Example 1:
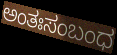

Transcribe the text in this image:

ಅಂತಃಸಂಬಂಧ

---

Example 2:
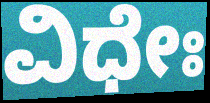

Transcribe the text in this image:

ವಿಧೇಃ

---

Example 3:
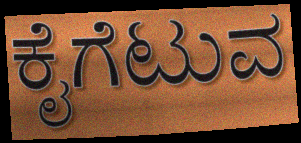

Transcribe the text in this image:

ಕೈಗೆಟುವ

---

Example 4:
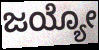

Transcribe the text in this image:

ಜಯ್ಯೋ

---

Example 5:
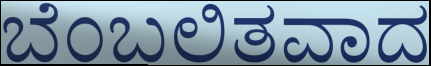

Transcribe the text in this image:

ಬೆಂಬಲಿತವಾದ